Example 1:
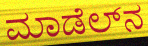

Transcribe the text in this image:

ಮಾಡೆಲ್‌ನ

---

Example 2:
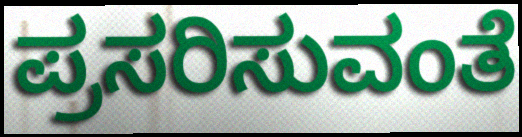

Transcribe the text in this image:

ಪ್ರಸರಿಸುವಂತೆ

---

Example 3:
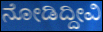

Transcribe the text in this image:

ನೋಡಿದ್ದೀವಿ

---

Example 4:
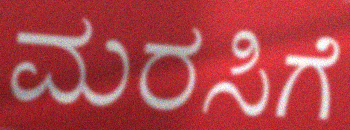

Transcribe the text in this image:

ಮರಸಿಗೆ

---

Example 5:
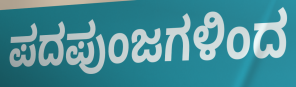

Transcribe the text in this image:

ಪದಪುಂಜಗಳಿಂದ